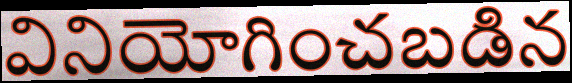
వినియోగించబడిన